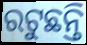
ରଟୁଛନ୍ତି